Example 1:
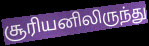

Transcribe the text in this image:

சூரியனிலிருந்து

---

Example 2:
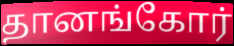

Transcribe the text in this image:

தானங்கோர்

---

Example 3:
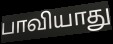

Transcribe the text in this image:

பாவியாது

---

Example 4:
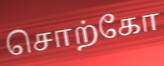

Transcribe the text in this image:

சொற்கோ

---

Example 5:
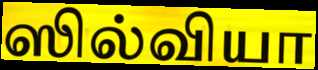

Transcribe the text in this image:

ஸில்வியா